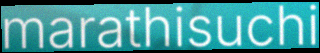
marathisuchi